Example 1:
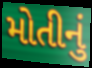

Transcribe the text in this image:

મોતીનું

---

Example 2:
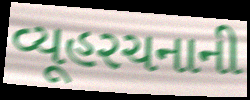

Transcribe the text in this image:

વ્યૂહરચનાની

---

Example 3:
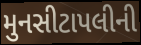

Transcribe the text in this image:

મુનસીટાપલીની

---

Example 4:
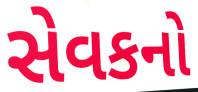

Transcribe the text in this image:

સેવકનો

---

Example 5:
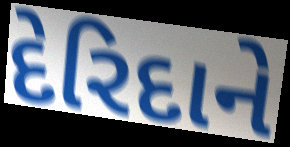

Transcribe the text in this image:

દેરિદાને